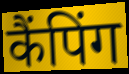
कैंपिंग